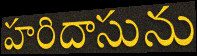
హరిదాసును